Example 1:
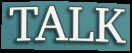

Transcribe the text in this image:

TALK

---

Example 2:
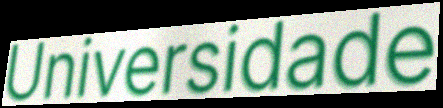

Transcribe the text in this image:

Universidade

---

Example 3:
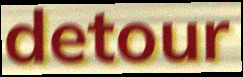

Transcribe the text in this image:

detour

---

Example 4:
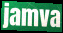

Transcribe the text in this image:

jamva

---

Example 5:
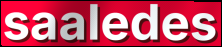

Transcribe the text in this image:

saaledes